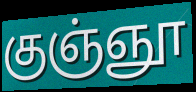
குஞ்ஞூ